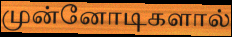
முன்னோடிகளால்